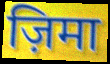
ज़िमा